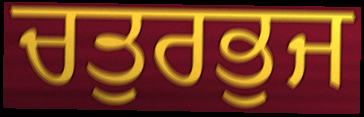
ਚਤੁਰਭੁਜ